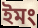
ইমং